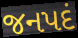
જનપદં